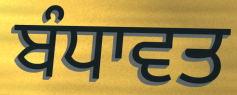
ਬੰਧਾਵਤ